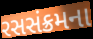
રસસંક્રમના